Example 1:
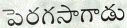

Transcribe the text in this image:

పెరగసాగాడు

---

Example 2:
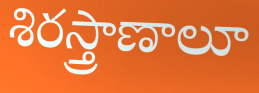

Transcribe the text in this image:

శిరస్త్రాణాలూ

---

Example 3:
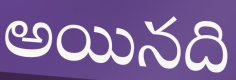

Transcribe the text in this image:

అయినది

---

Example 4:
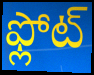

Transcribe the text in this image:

ఫ్లోట్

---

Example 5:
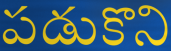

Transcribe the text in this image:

పడుకొని